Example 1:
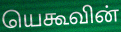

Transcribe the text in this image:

யெகூவின்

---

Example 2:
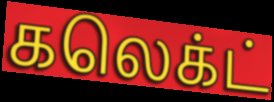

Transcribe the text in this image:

கலெக்ட்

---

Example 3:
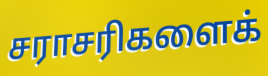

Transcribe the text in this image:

சராசரிகளைக்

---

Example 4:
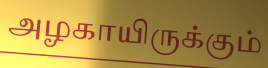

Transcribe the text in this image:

அழகாயிருக்கும்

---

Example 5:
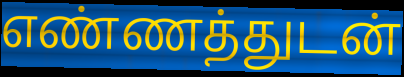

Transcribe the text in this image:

எண்ணத்துடன்